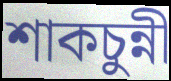
শাকচুন্নী